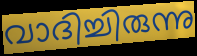
വാദിച്ചിരുന്നു